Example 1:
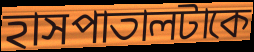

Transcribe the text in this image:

হাসপাতালটাকে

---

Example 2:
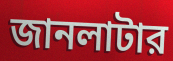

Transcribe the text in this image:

জানলাটার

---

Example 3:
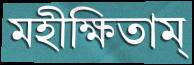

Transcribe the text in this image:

মহীক্ষিতাম্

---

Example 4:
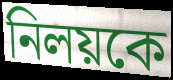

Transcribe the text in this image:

নিলয়কে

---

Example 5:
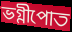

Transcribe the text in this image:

ভগ্নীপোত